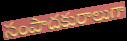
సంపాదకురాలుగా